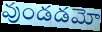
వుండడమో